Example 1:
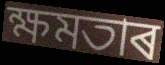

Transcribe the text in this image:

ক্ষমতাৰ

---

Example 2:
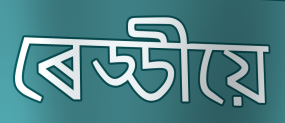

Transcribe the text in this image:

ৰেড্ডীয়ে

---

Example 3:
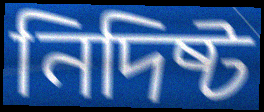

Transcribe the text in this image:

নিদিষ্ট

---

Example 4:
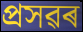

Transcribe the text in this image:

প্ৰসৱৰ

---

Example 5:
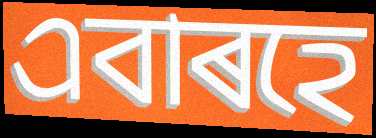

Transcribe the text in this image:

এবাৰহে